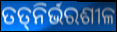
ତତ୍‍ନିର୍ଭରଶୀଳ